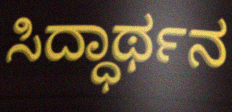
ಸಿದ್ಧಾರ್ಥನ